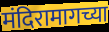
मंदिरामागच्या